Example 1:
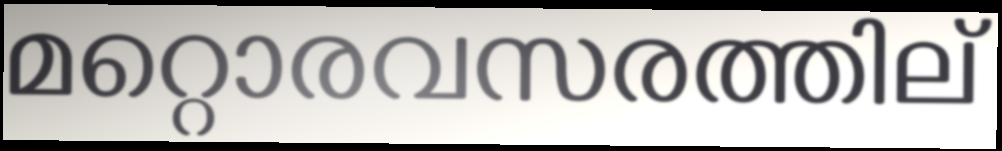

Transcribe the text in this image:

മറ്റൊരവസരത്തില്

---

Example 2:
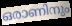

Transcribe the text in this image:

ഒരാണിനും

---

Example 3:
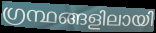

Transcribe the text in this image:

ഗ്രന്ഥങ്ങളിലായി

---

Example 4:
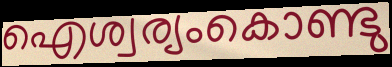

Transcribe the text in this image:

ഐശ്വര്യംകൊണ്ടു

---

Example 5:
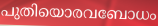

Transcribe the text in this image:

പുതിയൊരവബോധം